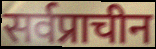
सर्वप्राचीन